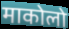
माकोलो